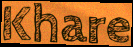
Khare